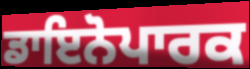
ਡਾਇਨੋਪਾਰਕ